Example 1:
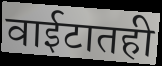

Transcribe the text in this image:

वाईटातही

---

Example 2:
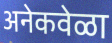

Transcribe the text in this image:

अनेकवेळा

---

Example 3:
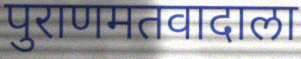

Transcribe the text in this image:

पुराणमतवादाला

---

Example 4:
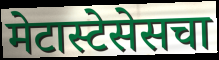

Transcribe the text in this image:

मेटास्टेसेसचा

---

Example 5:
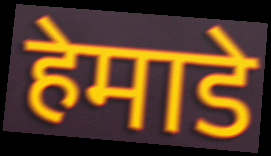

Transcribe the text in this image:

हेमाडे